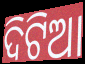
ଦିଟିଆ